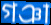
গঞা